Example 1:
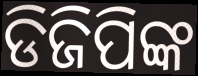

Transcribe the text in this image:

ଡିଜିପିଙ୍କ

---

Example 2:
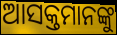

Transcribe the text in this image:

ଆସକ୍ତମାନଙ୍କୁ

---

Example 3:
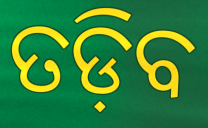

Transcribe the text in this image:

ତଡ଼ିବ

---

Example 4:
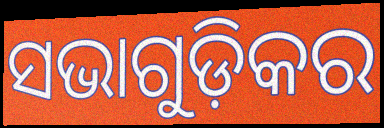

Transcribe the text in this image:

ସଭାଗୁଡ଼ିକର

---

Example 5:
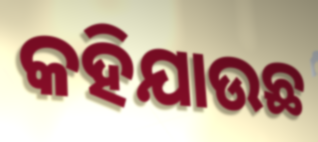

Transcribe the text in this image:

କହିଯାଉଛ